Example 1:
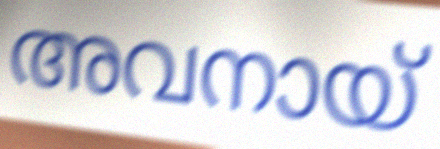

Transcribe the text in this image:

അവനായ്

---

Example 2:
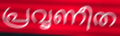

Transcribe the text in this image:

പ്രവൃണീത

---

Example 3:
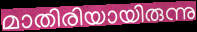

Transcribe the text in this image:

മാതിരിയായിരുന്നു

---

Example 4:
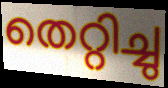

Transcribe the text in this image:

തെറ്റിച്ചു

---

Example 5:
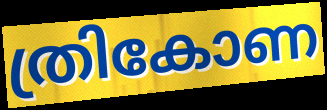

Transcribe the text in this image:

ത്രികോണ